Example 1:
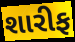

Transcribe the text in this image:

શારીફ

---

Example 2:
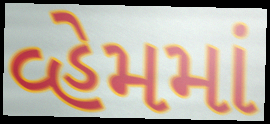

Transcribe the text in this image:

વ્હેમમાં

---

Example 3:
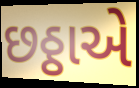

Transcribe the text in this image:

છઠ્ઠાએ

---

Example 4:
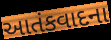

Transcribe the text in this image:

આતંકવાદના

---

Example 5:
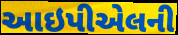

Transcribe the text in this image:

આઇપીએલની